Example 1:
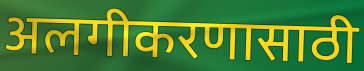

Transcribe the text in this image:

अलगीकरणासाठी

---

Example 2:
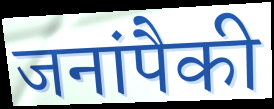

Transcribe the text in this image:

जनांपैकी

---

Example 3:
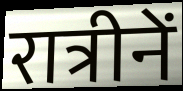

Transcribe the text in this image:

रात्रीनें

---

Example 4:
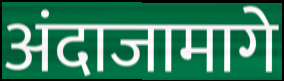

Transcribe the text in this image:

अंदाजामागे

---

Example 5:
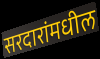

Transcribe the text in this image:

सरदारांमधील